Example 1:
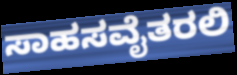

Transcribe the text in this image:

ಸಾಹಸವೈತರಲಿ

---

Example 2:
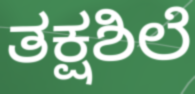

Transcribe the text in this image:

ತಕ್ಷಶಿಲೆ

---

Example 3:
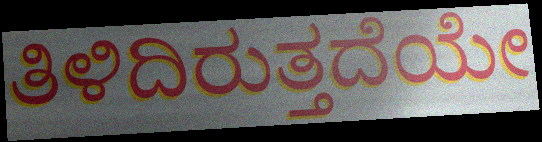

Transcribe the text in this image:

ತಿಳಿದಿರುತ್ತದೆಯೇ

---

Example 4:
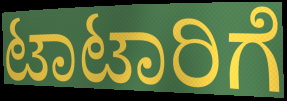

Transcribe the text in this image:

ಟಾಟಾರಿಗೆ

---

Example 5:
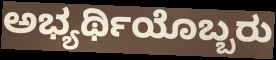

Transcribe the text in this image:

ಅಭ್ಯರ್ಥಿಯೊಬ್ಬರು